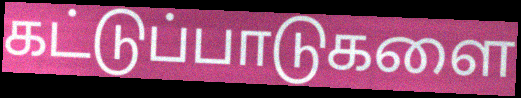
கட்டுப்பாடுகளை